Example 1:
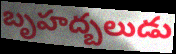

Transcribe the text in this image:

బృహద్బలుడు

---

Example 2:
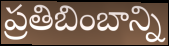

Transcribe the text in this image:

ప్రతిబింబాన్ని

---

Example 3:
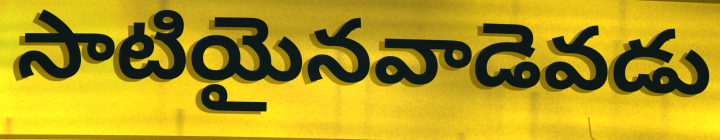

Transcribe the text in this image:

సాటియైనవాడెవడు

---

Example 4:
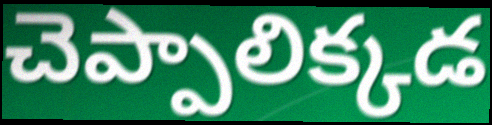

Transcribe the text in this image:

చెప్పాలిక్కడ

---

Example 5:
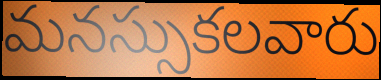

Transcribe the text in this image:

మనస్సుకలవారు